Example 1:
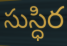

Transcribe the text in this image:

సుస్ధిర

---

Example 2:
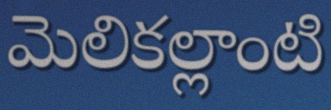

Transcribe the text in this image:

మెలికల్లాంటి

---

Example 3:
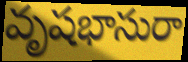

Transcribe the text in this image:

వృషభాసురా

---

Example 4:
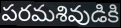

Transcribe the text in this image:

పరమశివుడికి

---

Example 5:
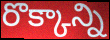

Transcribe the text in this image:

రొక్కాన్ని